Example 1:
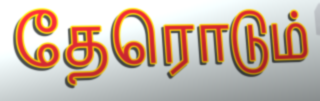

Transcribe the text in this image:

தேரொடும்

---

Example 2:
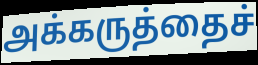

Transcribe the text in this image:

அக்கருத்தைச்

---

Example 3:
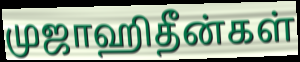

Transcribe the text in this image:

முஜாஹிதீன்கள்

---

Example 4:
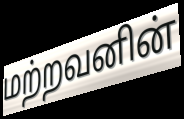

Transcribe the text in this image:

மற்றவனின்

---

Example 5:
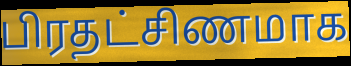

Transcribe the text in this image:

பிரதட்சிணமாக